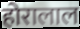
होरालाल